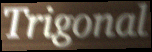
Trigonal